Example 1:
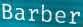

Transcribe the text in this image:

Barber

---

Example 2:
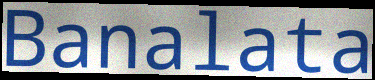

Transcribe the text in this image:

Banalata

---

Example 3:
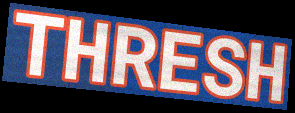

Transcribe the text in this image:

THRESH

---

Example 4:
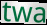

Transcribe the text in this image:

twa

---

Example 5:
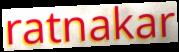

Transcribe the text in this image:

ratnakar